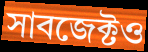
সাবজেক্টও